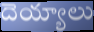
దెయ్యాలు